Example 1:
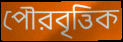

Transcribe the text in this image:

পৌরবৃত্তিক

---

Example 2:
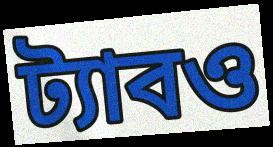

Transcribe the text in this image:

ট্যাবও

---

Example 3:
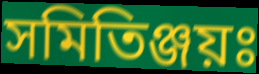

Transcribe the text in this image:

সমিতিঞ্জয়ঃ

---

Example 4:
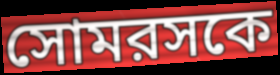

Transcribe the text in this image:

সোমরসকে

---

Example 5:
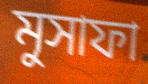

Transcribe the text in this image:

মুসাফা